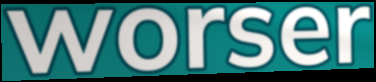
worser